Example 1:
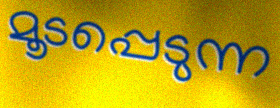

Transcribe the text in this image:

മൂടപ്പെടുന്ന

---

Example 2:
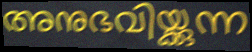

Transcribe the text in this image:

അനുഭവിയ്ക്കുന്ന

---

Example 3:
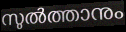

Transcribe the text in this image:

സുൽത്താനും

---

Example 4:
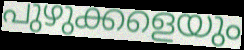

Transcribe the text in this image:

പുഴുക്കളെയും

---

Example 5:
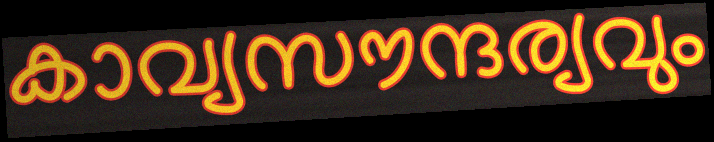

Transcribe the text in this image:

കാവ്യസൗന്ദര്യവും